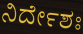
ನಿರ್ದೇಶಃ